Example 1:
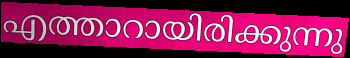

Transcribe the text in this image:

എത്താറായിരിക്കുന്നു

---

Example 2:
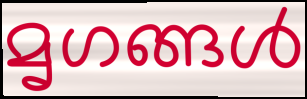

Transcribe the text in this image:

മൃഗങ്ങൾ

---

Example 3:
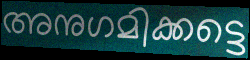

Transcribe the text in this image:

അനുഗമിക്കട്ടെ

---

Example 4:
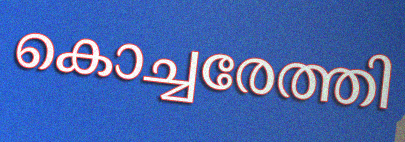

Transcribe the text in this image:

കൊച്ചരേത്തി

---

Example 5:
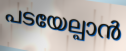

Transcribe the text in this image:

പടയേല്പാൻ